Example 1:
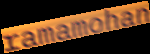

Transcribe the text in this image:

ramamohan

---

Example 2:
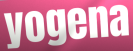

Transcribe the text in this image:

yogena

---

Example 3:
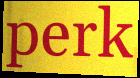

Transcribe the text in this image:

perk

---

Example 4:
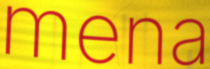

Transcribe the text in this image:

mena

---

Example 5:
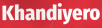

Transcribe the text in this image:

Khandiyero